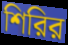
শিরির